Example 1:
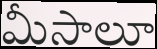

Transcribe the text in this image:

మీసాలూ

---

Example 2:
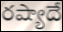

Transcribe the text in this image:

రష్యాదే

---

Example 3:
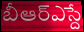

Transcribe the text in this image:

బీఆర్ఎస్దే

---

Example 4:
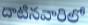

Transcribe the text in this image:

దాటినవారిలో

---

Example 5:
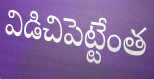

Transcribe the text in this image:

విడిచిపెట్టేంత